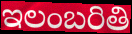
ఇలంబరితి